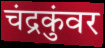
चंद्रकुंवर